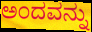
ಅಂದವನ್ನು